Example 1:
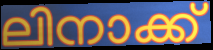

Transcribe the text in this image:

ലിനാക്ക്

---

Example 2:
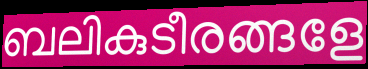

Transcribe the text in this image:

ബലികുടീരങ്ങളേ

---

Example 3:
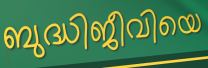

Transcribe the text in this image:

ബുദ്ധിജീവിയെ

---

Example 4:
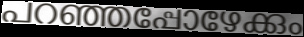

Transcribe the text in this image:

പറഞ്ഞപ്പോഴേക്കും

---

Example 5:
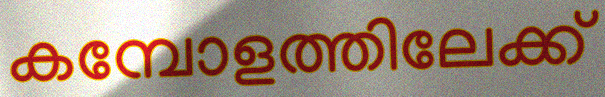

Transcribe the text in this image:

കമ്പോളത്തിലേക്ക്